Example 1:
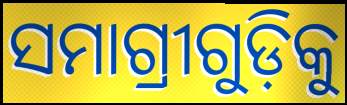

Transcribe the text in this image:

ସମାଗ୍ରୀଗୁଡ଼ିକୁ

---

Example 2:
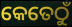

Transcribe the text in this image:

କେତେଠୁଁ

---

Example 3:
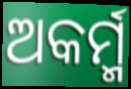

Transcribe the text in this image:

ଅକର୍ମ୍ମ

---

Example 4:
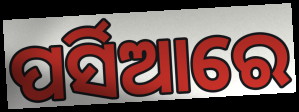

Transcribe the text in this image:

ପର୍ସିଆରେ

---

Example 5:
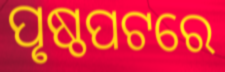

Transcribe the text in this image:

ପୃଷ୍ଠପଟରେ